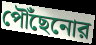
পৌঁছেনোর